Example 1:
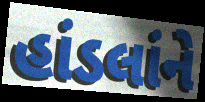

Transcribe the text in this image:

હાંડલાંને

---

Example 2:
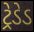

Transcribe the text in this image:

ટ્રેડેડ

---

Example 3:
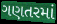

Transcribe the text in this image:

ગણતરમાં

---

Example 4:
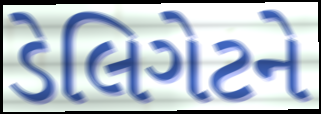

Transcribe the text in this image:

ડેલિગેટને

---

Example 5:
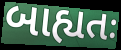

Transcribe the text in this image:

બાહ્યતઃ